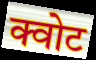
क्वोट